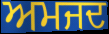
ਅਮਜਦ